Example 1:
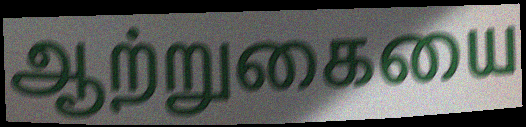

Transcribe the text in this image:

ஆற்றுகையை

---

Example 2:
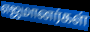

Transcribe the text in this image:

எஜமானர்கள்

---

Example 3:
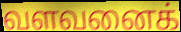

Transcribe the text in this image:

வளவனைக்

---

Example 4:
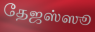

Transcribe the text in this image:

தேஜஸ்ஸூ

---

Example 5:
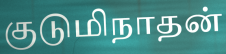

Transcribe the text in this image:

குடுமிநாதன்